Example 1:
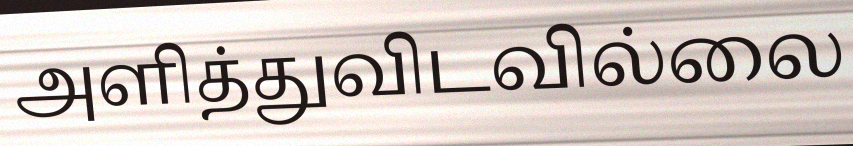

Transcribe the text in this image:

அளித்துவிடவில்லை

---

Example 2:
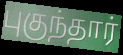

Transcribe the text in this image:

புகுந்தார்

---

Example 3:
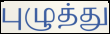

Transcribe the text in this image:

புழுத்து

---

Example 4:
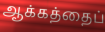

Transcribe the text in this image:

ஆக்கத்தைப்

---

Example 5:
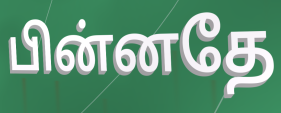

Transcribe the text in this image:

பின்னதே